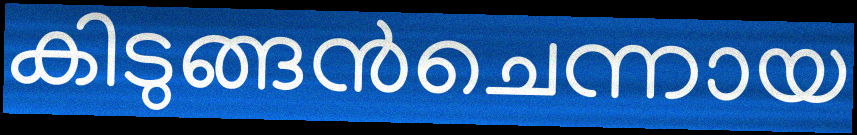
കിടുങ്ങൻചെന്നായ